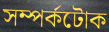
সম্পৰ্কটোক